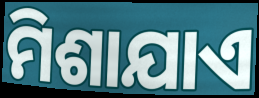
ମିଶାଯାଏ